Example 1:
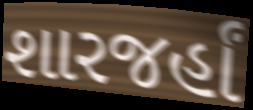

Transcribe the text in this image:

શારજર્હાં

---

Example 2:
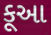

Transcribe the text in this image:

કૂઆ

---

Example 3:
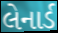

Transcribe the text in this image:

લેનાર્ડ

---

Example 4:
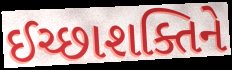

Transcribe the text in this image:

ઈચ્છાશક્તિને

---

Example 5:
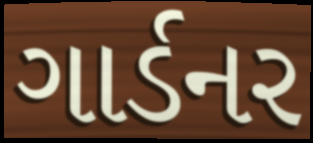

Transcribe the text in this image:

ગાર્ડનર